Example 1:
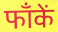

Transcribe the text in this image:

फाँकें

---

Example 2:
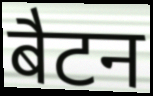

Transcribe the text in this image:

बैटन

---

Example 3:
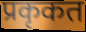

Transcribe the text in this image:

प्रकृकत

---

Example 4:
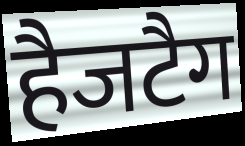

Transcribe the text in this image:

हैजटैग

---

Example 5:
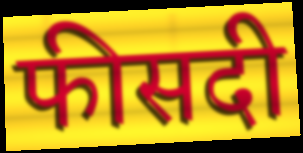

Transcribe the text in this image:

फीसदी